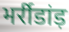
भर्रीडांड़